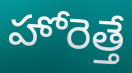
హోరెత్తే